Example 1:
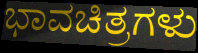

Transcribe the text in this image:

ಭಾವಚಿತ್ರಗಳು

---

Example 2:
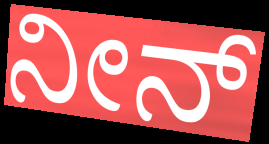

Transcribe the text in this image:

ನೀನ್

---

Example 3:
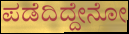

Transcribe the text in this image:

ಪಡೆದಿದ್ದೇನೋ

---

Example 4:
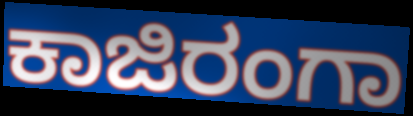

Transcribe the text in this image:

ಕಾಜಿರಂಗಾ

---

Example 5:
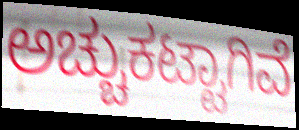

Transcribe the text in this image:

ಅಚ್ಚುಕಟ್ಟಾಗಿವೆ